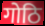
गोठि